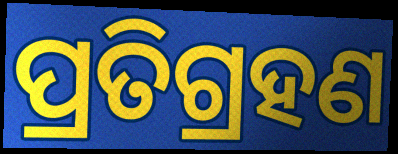
ପ୍ରତିଗ୍ରହଣ